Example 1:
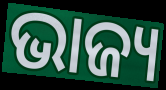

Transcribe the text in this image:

ଭାଜ୍ୟ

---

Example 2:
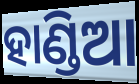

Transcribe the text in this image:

ହାଣ୍ଡିଆ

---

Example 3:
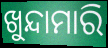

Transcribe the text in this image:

ଖୁନ୍ଦାମାରି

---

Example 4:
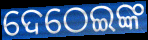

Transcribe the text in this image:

ଦେଠେଇଙ୍କ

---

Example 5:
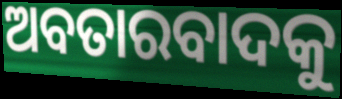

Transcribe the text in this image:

ଅବତାରବାଦକୁ